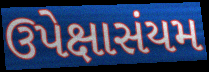
ઉપેક્ષાસંયમ